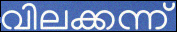
വിലക്കന്ന്